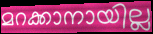
മറക്കാനായില്ല